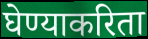
घेण्याकरिता